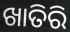
ଖାତିରି